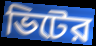
ভিটের